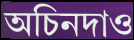
অচিনদাও